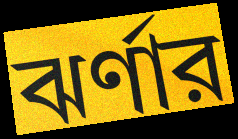
ঝর্ণার